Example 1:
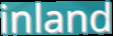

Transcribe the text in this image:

inland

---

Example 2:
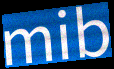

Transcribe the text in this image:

mib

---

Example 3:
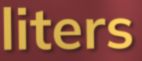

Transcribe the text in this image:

liters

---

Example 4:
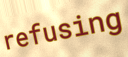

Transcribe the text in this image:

refusing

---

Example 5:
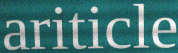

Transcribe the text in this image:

ariticle